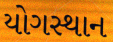
યોગસ્થાન